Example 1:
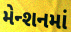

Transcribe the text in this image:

મેન્શનમાં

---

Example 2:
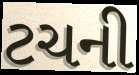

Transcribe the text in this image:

ટચની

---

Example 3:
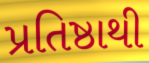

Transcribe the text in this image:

પ્રતિષ્ઠાથી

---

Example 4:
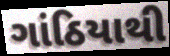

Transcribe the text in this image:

ગાંઠિયાથી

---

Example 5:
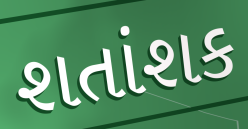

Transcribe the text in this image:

શતાંશક